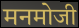
मनमोजी